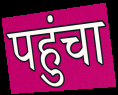
पहुंचा